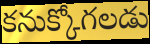
కనుక్కోగలడు